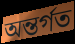
অন্তৰ্গত